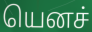
யெனச்